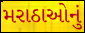
મરાઠાઓનું